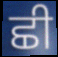
ਛੀ